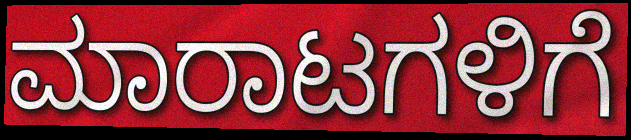
ಮಾರಾಟಗಳಿಗೆ